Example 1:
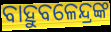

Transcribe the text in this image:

ବାହୁବଳେନ୍ଦ୍ରଙ୍କ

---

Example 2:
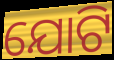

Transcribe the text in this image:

ଯୋଟି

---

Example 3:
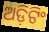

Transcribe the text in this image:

ଅଡ଼ିଟିଂ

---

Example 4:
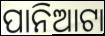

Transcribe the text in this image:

ପାନିଆଟା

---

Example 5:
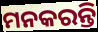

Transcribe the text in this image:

ମନକରନ୍ତି